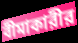
বীমাকারীর